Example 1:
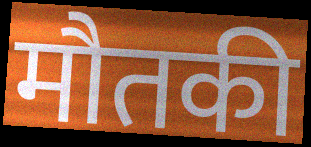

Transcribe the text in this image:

मौतकी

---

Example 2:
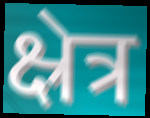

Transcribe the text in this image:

क्ष्रेत्र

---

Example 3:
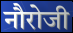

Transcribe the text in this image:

नौरोजी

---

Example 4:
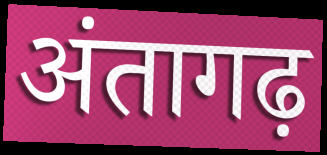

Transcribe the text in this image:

अंतागढ़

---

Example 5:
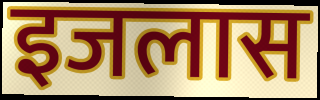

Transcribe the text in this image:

इजलास